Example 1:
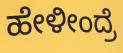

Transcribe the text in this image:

ಹೇಳೀಂದ್ರೆ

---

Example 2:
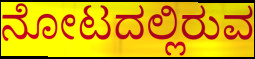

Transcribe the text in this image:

ನೋಟದಲ್ಲಿರುವ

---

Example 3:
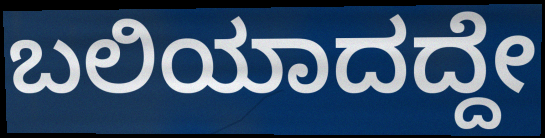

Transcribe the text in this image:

ಬಲಿಯಾದದ್ದೇ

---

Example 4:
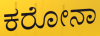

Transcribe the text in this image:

ಕರೋನಾ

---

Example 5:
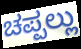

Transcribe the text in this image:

ಚಪ್ಪಲ್ಲು